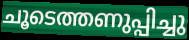
ചൂടെത്തണുപ്പിച്ചു